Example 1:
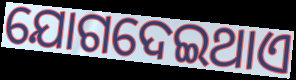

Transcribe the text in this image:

ଯୋଗଦେଇଥାଏ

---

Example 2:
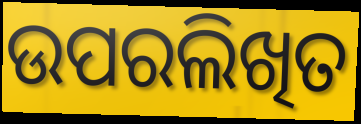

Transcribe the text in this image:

ଉପରଲିଖିତ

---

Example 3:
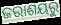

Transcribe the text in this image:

ଜରାଶୟରୁ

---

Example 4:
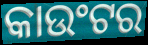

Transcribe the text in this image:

କାଉଂଟର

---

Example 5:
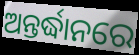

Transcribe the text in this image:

ଅନ୍ତର୍ଦ୍ଧାନରେ